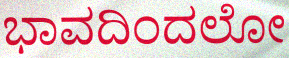
ಭಾವದಿಂದಲೋ